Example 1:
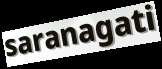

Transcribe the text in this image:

saranagati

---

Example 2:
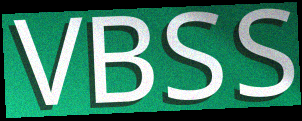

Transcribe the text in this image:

VBSS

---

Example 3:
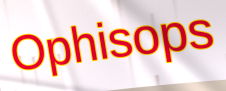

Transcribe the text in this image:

Ophisops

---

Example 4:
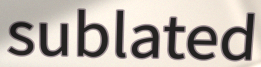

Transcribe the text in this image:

sublated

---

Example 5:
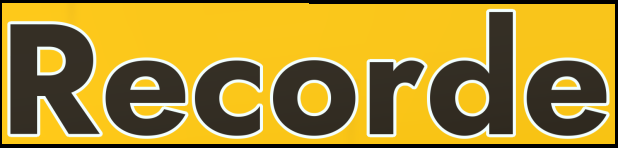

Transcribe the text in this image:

Recorde